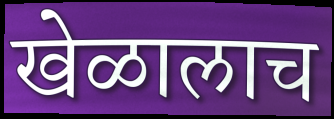
खेळालाच